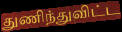
துணிந்துவிட்ட